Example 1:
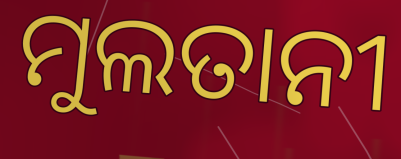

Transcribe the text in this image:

ମୁଲତାନୀ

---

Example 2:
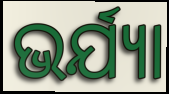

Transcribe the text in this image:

ଭର୍ଯ୍ୟା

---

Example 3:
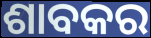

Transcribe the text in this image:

ଶାବକର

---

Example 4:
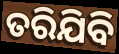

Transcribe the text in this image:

ତରିଯିବି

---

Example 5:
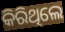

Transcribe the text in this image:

କିରିଥିଲେ